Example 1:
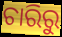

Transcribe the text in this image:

ଚାରିରୁ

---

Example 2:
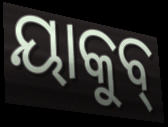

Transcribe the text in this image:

ୟାକୁବ୍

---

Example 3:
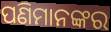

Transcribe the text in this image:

ପଣିମାନଙ୍କର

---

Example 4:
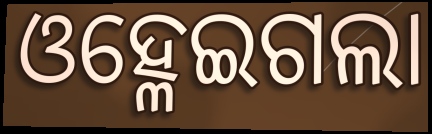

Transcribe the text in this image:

ଓହ୍ଳେଇଗଲା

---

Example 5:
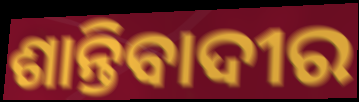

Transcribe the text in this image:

ଶାନ୍ତିବାଦୀର